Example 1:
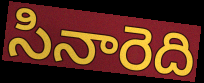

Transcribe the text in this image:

సినారెది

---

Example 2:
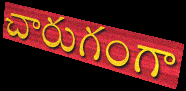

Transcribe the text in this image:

చారుగంగా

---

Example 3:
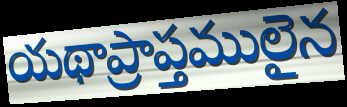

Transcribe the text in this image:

యథాప్రాప్తములైన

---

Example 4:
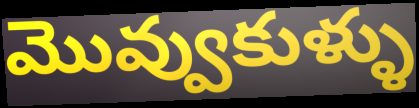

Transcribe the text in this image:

మొవ్వుకుళ్ళు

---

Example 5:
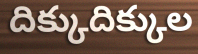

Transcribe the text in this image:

దిక్కుదిక్కుల